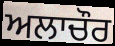
ਅਲਾਚੌਰ